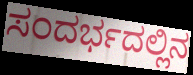
ಸಂದರ್ಭದಲ್ಲಿನ